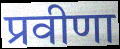
प्रवीणा